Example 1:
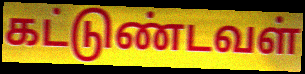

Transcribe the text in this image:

கட்டுண்டவள்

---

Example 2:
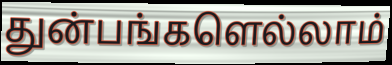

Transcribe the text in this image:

துன்பங்களெல்லாம்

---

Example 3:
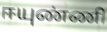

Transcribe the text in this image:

ஈயுண்ணி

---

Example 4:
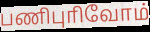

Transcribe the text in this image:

பணிபுரிவோம்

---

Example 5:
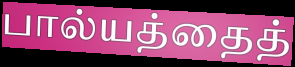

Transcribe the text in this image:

பால்யத்தைத்